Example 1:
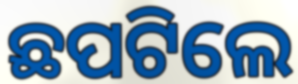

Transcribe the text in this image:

ଛପଟିଲେ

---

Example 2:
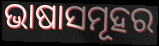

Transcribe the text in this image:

ଭାଷାସମୂହର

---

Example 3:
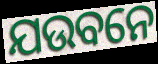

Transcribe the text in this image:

ଯଉବନେ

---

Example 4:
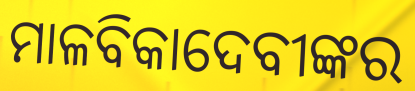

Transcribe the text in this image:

ମାଳବିକାଦେବୀଙ୍କର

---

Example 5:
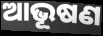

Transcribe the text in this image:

ଆଭୂଷଣ